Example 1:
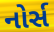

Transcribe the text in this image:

નોર્સ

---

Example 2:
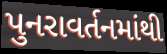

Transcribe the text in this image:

પુનરાવર્તનમાંથી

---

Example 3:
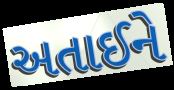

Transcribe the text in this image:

અતાઈને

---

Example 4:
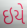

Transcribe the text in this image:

ઇયે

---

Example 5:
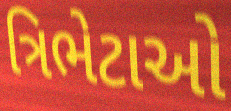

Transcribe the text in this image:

ત્રિભેટાઓ